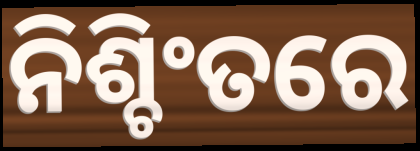
ନିଶ୍ଚିଂତରେ